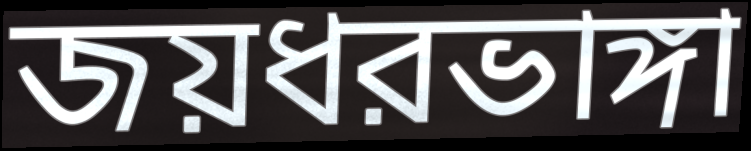
জয়ধরভাঙ্গা